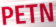
PETN